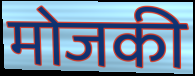
मोजकी